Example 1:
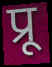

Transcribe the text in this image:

प्रू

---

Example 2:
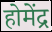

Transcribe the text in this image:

होमेंद्र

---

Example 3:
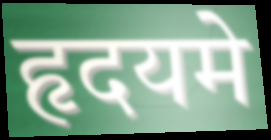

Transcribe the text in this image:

हृदयमे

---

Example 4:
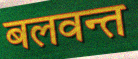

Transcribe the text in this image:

बलवन्त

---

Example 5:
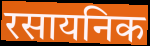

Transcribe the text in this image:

रसायनिक